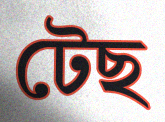
টেছ